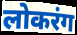
लोकरंग